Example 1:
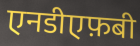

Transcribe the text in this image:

एनडीएफ़बी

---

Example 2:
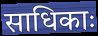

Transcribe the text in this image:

साधिकाः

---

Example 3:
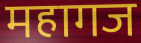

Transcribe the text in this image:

महागज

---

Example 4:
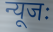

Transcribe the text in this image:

न्यूजः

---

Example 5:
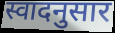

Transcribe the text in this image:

स्वादनुसार